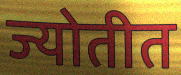
ज्योतीत